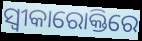
ସ୍ୱୀକାରୋକ୍ତିରେ